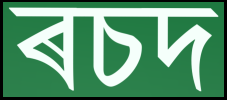
ৰচদ